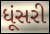
ધૂંસરી